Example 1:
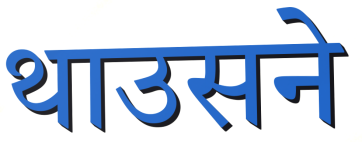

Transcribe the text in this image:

थाउसने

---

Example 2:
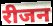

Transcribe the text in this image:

रीजन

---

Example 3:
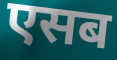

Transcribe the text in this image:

एसब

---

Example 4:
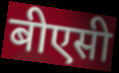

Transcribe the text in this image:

बीएसी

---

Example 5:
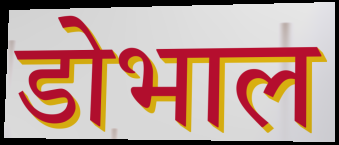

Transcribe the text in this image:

डोभाल